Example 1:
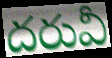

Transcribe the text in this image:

దరువీ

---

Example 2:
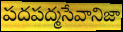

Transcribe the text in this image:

పదపద్మసేవానిజా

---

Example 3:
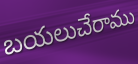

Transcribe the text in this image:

బయలుచేరాము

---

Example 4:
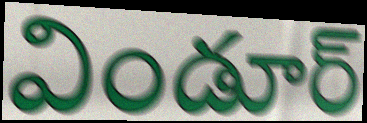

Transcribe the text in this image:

విండూర్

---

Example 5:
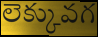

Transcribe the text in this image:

లెక్కువగ